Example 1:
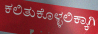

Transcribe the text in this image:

ಕಲಿತುಕೊಳ್ಳಲಿಕ್ಕಾಗಿ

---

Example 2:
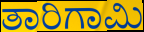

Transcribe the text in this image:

ತಾರಿಗಾಮಿ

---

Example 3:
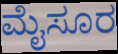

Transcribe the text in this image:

ಮೈಸೂರ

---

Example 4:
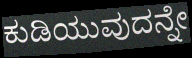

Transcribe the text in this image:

ಕುಡಿಯುವುದನ್ನೇ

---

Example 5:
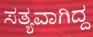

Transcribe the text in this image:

ಸತ್ಯವಾಗಿದ್ದ